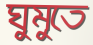
ঘুমুতে